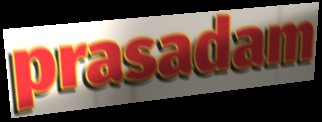
prasadam